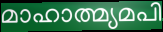
മാഹാത്മ്യമപി